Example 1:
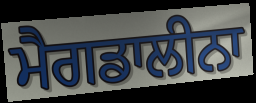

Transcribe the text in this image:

ਮੈਗਡਾਲੀਨਾ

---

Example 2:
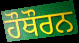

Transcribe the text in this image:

ਹੌਥੌਰਨ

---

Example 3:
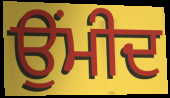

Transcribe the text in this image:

ਉਂਮੀਦ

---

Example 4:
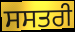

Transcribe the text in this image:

ਸਸਤਰੀ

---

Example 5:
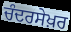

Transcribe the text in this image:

ਚੰਦਰਸੇਖ਼ਰ